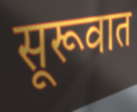
सूरूवात